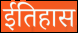
ईतिहास